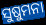
ସୁଷୁମନା